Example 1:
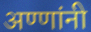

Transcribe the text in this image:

अण्णांनी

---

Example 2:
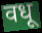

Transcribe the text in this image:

वधू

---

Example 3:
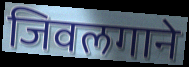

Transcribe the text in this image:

जिवलगाने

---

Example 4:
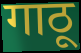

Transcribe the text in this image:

गाठू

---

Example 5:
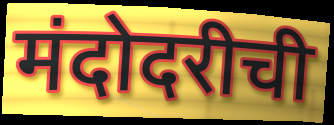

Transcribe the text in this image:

मंदोदरीची